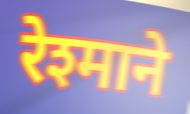
रेश्माने